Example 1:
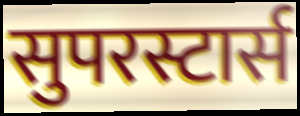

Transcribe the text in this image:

सुपरस्टार्स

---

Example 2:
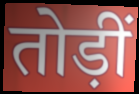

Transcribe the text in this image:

तोड़ीं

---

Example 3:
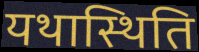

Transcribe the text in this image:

यथास्थिति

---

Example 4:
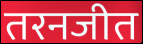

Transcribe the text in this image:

तरनजीत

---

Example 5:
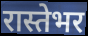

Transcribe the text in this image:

रास्तेभर